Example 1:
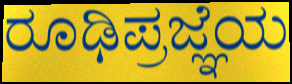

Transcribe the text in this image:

ರೂಢಿಪ್ರಜ್ಞೆಯ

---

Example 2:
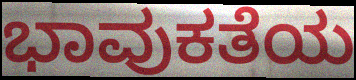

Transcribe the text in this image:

ಭಾವುಕತೆಯ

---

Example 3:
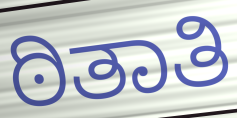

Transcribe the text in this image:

ಠಿತಾತಿ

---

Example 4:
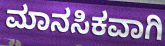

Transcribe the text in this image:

ಮಾನಸಿಕವಾಗಿ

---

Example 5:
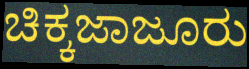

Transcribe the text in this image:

ಚಿಕ್ಕಜಾಜೂರು